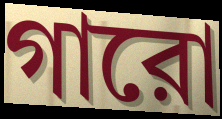
গারো